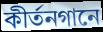
কীর্তনগানে